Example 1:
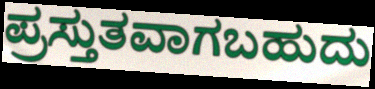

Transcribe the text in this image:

ಪ್ರಸ್ತುತವಾಗಬಹುದು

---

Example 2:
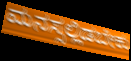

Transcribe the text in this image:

ಮನಸ್ಸಲ್ಲಿಡಬೇಕು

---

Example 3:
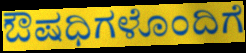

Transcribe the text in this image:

ಔಷಧಿಗಳೊಂದಿಗೆ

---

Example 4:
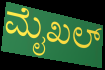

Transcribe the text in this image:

ಮೈಖಲ್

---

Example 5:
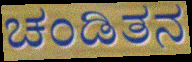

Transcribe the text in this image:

ಚಂಡಿತನ